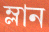
ম্লান